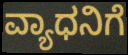
ವ್ಯಾಧನಿಗೆ